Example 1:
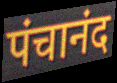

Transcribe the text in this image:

पंचानंद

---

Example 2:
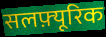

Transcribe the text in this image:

सलफ़्यूरिक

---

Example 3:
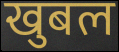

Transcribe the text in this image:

खुबल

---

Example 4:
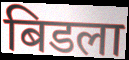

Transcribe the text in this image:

बिडला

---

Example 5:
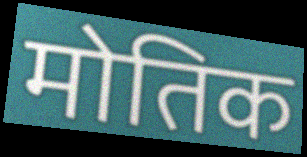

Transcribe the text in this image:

मोतिक